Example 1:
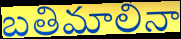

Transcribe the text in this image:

బతిమాలినా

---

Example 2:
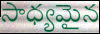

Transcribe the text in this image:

సాధ్యమైన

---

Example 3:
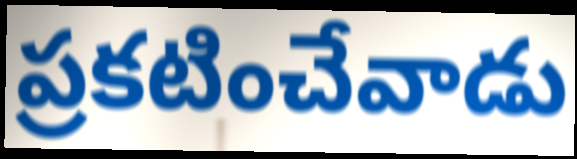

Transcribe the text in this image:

ప్రకటించేవాడు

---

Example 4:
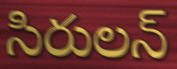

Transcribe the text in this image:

సిరులన్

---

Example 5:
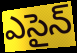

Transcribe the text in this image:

ఎసైన్